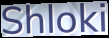
Shloki